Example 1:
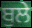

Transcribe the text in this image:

ਬੁਲੇ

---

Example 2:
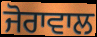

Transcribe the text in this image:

ਜੋਰਾਵਾਲ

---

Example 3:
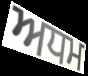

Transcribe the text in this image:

ਅਧਮ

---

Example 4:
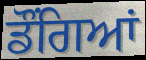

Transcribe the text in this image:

ਡੌਂਗਿਆਂ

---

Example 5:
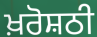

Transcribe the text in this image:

ਖ਼ਰੋਸ਼ਠੀ